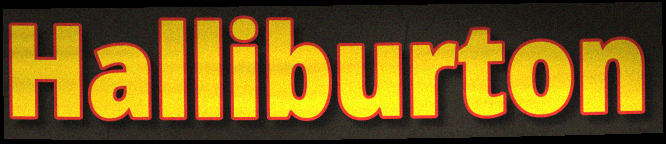
Halliburton